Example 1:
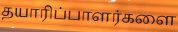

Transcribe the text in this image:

தயாரிப்பாளர்களை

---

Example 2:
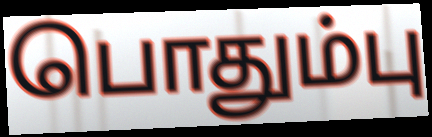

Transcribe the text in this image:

பொதும்பு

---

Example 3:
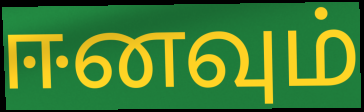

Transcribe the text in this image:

ஈனவும்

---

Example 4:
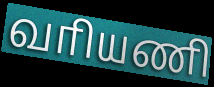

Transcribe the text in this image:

வரியணி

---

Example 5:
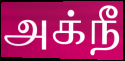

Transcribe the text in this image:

அக்நீ